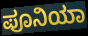
ಪೂನಿಯಾ